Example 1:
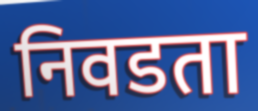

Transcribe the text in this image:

निवडता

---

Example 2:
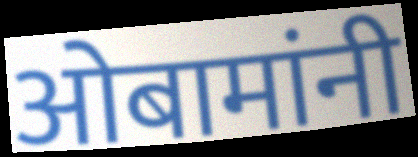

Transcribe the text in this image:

ओबामांनी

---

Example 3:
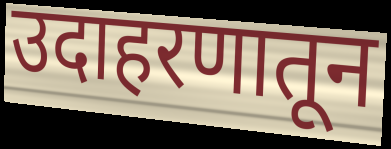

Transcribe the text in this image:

उदाहरणातून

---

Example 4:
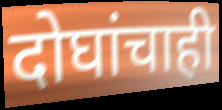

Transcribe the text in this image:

दोघांचाही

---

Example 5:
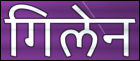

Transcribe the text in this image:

गिलेन